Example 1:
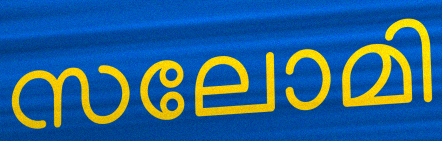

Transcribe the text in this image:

സലോമി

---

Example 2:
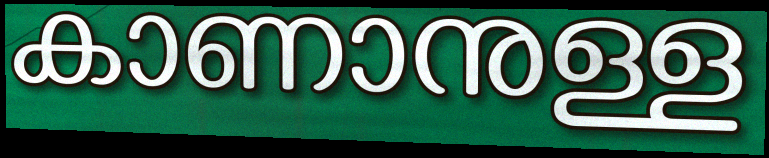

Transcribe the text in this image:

കാണാനുള്ള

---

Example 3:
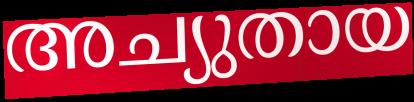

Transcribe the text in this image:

അച്യുതായ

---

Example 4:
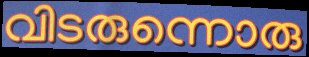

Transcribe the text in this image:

വിടരുന്നൊരു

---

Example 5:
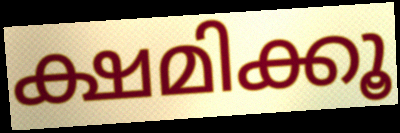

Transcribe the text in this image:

ക്ഷമിക്കൂ